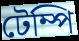
টেম্পি